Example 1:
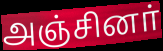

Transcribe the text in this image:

அஞ்சினர்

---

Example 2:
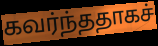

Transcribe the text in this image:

கவர்ந்ததாகச்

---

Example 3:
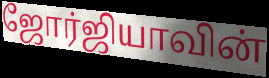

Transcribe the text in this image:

ஜோர்ஜியாவின்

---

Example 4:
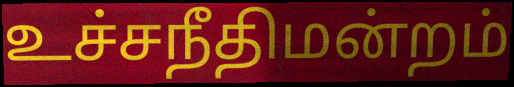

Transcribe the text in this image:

உச்சநீதிமன்றம்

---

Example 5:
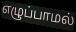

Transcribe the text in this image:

எழுப்பாமல்